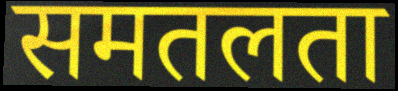
समतलता